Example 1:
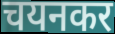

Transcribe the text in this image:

चयनकर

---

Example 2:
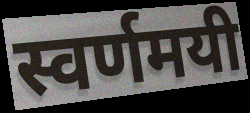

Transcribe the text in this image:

स्वर्णमयी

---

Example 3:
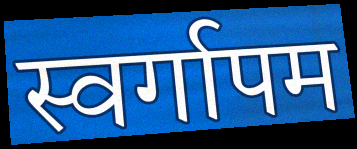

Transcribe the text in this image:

स्वर्गापम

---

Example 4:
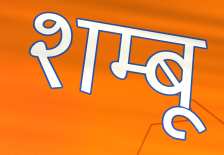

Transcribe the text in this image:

शम्बू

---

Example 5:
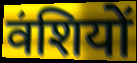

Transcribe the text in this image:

वंशियों